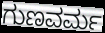
ಗುಣವರ್ಮ